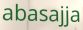
abasajja